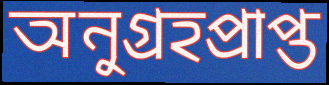
অনুগ্রহপ্রাপ্ত